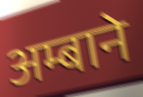
अम्बाने